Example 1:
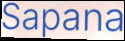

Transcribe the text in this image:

Sapana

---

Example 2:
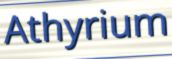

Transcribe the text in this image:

Athyrium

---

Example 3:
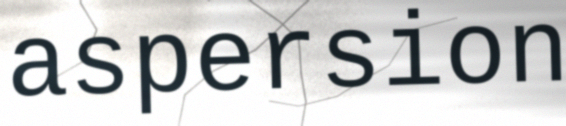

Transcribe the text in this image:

aspersion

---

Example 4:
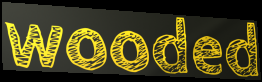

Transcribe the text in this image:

wooded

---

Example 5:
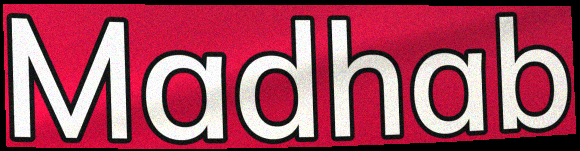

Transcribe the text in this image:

Madhab